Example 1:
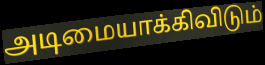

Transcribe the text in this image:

அடிமையாக்கிவிடும்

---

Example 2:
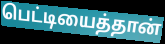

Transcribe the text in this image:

பெட்டியைத்தான்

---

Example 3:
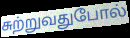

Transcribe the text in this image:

சுற்றுவதுபோல்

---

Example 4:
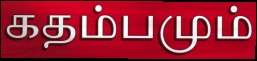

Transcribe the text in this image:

கதம்பமும்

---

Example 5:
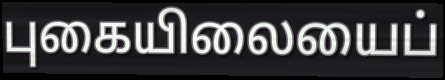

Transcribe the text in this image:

புகையிலையைப்